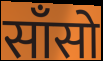
साँसो